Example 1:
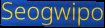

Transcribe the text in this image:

Seogwipo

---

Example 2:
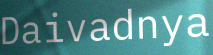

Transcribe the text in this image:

Daivadnya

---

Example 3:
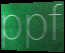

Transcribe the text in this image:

ppf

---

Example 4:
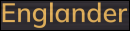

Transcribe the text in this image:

Englander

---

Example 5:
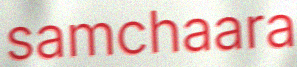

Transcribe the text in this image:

samchaara